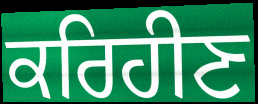
ਕਰਿਹੀਣ